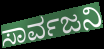
ಸಾರ್ವಜನಿ